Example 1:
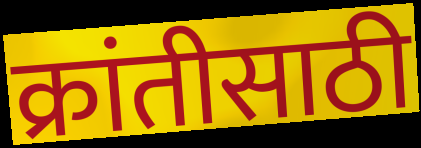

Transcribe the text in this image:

क्रांतीसाठी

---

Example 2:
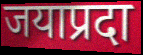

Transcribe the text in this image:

जयाप्रदा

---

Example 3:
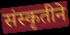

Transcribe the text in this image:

संस्कृतीने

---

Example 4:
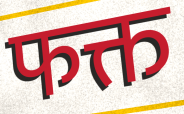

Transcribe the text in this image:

फक्त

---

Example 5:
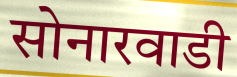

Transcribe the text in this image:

सोनारवाडी